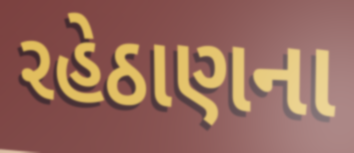
રહેઠાણના